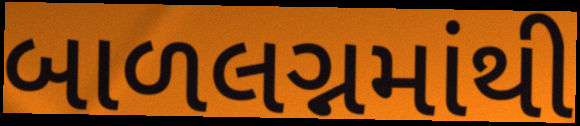
બાળલગ્નમાંથી